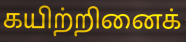
கயிற்றினைக்